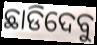
ଛାଡିଦେବୁ